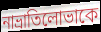
নাভ্রাতিলোভাকে